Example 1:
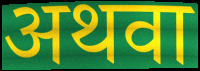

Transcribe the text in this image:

अथवा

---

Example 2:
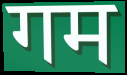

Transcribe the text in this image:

गम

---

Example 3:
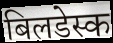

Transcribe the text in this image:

बिलडेस्क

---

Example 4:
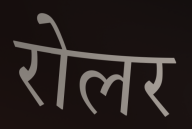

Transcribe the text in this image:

रोलर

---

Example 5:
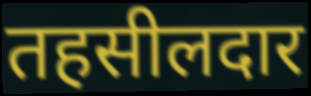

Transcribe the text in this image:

तहसीलदार